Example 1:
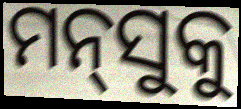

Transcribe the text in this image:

ମନ୍‌ସୁକୁ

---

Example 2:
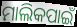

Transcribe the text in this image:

ମାଲିକପାଇଁ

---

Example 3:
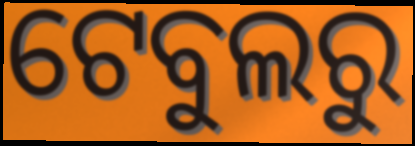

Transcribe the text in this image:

ଟେବୁଲରୁ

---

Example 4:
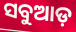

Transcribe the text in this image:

ସବୁଆଡ଼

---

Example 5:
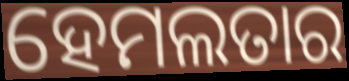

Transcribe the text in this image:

ହେମଲତାର